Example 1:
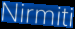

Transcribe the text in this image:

Nirmiti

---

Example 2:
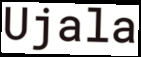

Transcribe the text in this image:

Ujala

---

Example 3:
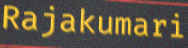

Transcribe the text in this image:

Rajakumari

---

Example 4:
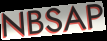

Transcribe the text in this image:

NBSAP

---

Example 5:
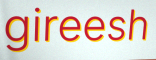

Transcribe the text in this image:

gireesh